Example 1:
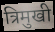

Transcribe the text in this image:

त्रिमुखी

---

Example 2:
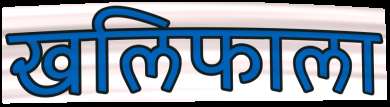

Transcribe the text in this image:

खलिफाला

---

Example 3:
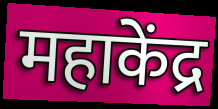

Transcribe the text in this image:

महाकेंद्र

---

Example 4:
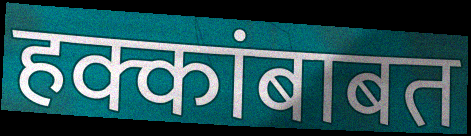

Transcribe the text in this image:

हक्कांबाबत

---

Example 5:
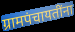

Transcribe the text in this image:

ग्रामपंचायतींना